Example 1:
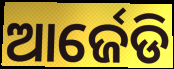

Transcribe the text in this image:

ଆର୍ଜେଡି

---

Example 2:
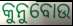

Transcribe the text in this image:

କୁନୁବୋଉ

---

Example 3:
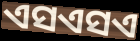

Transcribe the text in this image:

ଏସଏସଏ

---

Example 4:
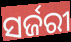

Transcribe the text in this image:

ସର୍ଜରୀ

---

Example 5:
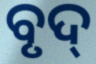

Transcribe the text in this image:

ବୃଦ୍